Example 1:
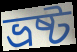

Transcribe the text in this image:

ভ্রষ্ট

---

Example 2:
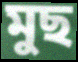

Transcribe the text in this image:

মুছ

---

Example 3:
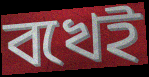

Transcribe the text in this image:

বখেই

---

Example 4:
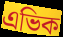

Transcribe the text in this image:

এভিক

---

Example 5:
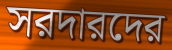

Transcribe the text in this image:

সরদারদের